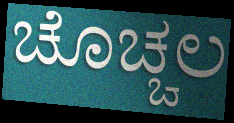
ಚೊಚ್ಚಲ